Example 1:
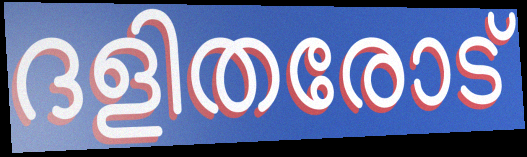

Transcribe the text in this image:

ദളിതരോട്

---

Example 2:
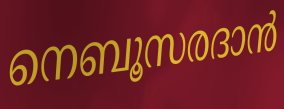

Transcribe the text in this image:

നെബൂസരദാൻ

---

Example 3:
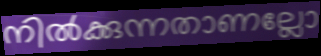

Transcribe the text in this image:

നിൽക്കുന്നതാണല്ലോ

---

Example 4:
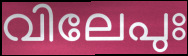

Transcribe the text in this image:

വിലേപുഃ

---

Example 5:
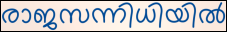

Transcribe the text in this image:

രാജസന്നിധിയിൽ